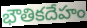
భౌతికదేహం